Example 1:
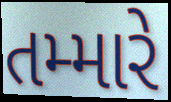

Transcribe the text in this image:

તમ્મારે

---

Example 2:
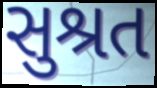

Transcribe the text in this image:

સુશ્રત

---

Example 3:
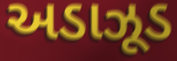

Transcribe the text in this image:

અડાઝૂડ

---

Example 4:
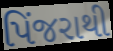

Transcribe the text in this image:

પિંજરાથી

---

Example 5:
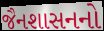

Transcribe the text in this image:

જૈનશાસનનો